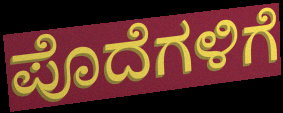
ಪೊದೆಗಳಿಗೆ